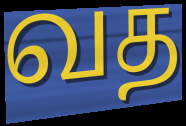
வத